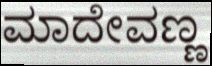
ಮಾದೇವಣ್ಣ